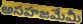
అసహజమేమీ